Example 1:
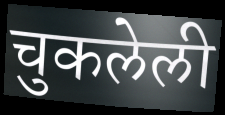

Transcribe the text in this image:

चुकलेली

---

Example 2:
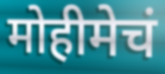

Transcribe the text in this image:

मोहीमेचं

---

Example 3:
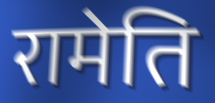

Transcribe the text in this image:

रामेति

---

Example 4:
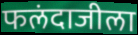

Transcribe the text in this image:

फलंदाजीला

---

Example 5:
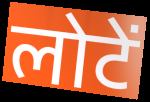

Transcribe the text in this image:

लोटें